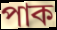
পাক